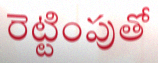
రెట్టింపుతో